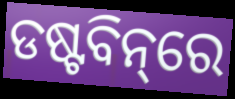
ଡଷ୍ଟବିନ୍‌ରେ